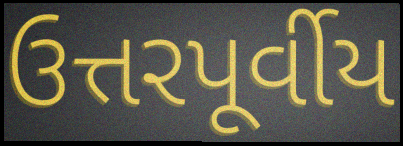
ઉત્તરપૂર્વીય